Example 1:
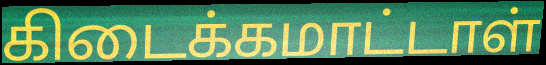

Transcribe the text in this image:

கிடைக்கமாட்டாள்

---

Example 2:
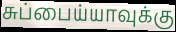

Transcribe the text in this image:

சுப்பைய்யாவுக்கு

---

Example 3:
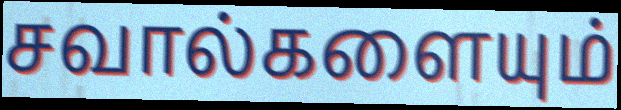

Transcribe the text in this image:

சவால்களையும்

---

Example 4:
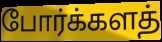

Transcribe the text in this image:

போர்க்களத்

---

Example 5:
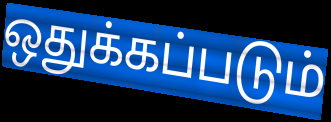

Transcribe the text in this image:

ஒதுக்கப்படும்